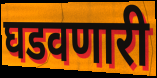
घडवणारी